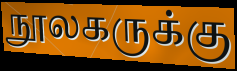
நூலகருக்கு